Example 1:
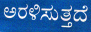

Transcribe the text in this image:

ಅರಳಿಸುತ್ತದೆ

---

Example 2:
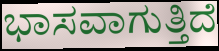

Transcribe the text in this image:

ಭಾಸವಾಗುತ್ತಿದೆ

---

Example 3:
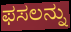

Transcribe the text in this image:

ಫಸಲನ್ನು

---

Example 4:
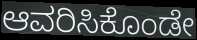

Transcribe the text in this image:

ಆವರಿಸಿಕೊಂಡೇ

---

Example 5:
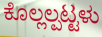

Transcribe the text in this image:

ಕೊಲ್ಲಲ್ಪಟ್ಟಳು